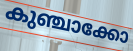
കുഞ്ചാക്കോ